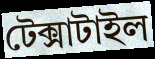
টেক্সাটাইল